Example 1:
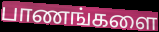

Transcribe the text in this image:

பாணங்களை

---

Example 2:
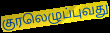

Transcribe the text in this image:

குரலெழுப்புவது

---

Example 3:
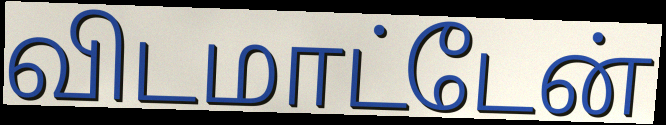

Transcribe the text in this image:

விடமாட்டேன்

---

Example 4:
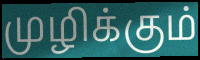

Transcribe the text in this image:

முழிக்கும்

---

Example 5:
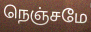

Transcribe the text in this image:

நெஞ்சமே